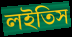
লইতিস